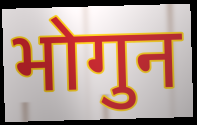
भोगुन